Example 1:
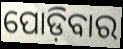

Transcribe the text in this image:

ପୋଡ଼ିବାର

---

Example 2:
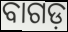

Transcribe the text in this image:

ବାଗଡ଼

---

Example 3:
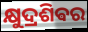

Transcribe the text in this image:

କ୍ଷୁଦ୍ରଶିଵର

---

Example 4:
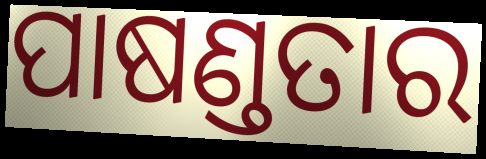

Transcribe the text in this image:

ପାଷଣ୍ଡତାର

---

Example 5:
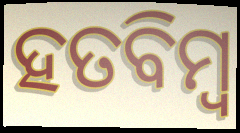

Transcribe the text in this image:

ହତବିମ୍ବ